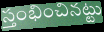
స్తంభించినట్టు